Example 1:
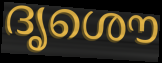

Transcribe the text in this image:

ദൃശൌ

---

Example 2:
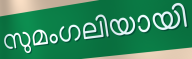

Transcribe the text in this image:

സുമംഗലിയായി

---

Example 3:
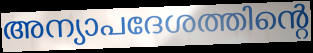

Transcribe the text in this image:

അന്യാപദേശത്തിന്റെ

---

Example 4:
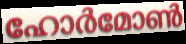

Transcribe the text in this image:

ഹോർമോൺ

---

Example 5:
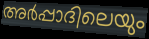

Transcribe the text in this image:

അർപ്പാദിലെയും